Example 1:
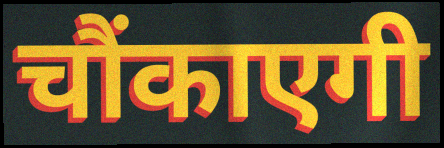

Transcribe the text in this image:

चौंकाएगी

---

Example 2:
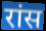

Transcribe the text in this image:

रांस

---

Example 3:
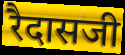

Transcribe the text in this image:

रैदासजी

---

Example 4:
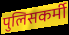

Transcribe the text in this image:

पुलिसकर्मी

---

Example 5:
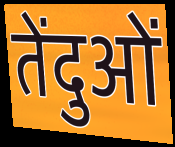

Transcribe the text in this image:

तेंदुओं